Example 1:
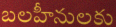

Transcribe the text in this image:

బలహీనులకు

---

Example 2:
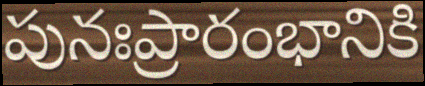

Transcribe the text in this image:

పునఃప్రారంభానికి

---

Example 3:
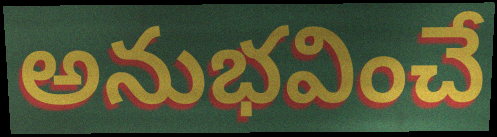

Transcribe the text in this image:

అనుభవించే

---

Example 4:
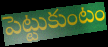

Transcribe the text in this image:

పెట్టుకుంటం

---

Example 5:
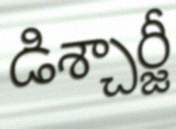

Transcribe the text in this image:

డిశ్చార్జీ